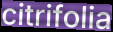
citrifolia